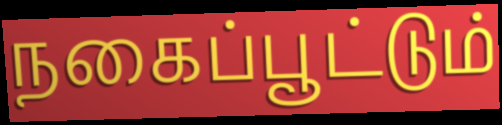
நகைப்பூட்டும்